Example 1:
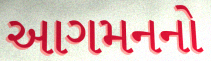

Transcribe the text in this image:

આગમનનો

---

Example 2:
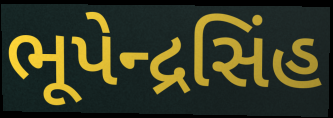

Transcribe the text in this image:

ભૂપેન્દ્રસિંહ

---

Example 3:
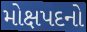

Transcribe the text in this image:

મોક્ષપદનો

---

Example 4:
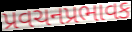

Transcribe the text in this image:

પ્રવચનપ્રભાવક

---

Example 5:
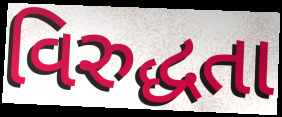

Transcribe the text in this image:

વિરુદ્ધતા